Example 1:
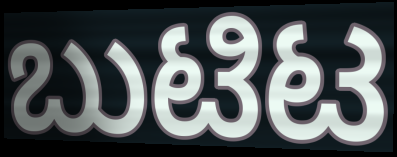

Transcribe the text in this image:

ಬುಟಿಟ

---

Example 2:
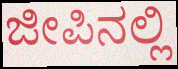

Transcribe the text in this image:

ಜೀಪಿನಲ್ಲಿ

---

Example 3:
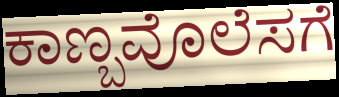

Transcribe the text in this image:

ಕಾಣ್ಬವೊಲೆಸಗೆ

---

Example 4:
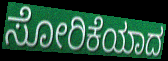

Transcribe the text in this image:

ಸೋರಿಕೆಯಾದ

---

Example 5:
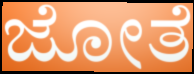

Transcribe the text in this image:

ಜೋತೆ